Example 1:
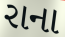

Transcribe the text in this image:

રાના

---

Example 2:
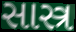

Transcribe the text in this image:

સાસ્ત્ર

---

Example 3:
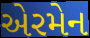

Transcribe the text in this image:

એરમેન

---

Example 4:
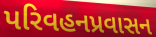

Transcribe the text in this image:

પરિવહનપ્રવાસન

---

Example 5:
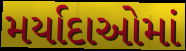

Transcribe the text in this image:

મર્યાદાઓમાં